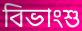
বিভাংশু